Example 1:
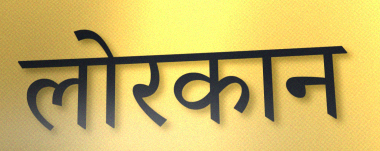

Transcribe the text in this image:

लोरकान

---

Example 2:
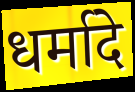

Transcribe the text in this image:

धर्मादे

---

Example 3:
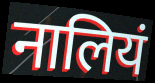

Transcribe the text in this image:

नालियं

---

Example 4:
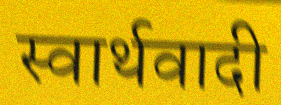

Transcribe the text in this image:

स्वार्थवादी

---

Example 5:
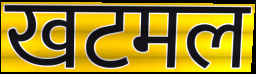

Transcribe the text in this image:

खटमल